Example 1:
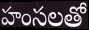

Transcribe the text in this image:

హంసలతో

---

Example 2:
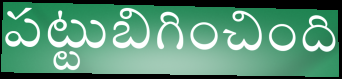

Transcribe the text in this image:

పట్టుబిగించింది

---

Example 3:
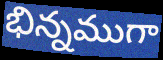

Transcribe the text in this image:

భిన్నముగా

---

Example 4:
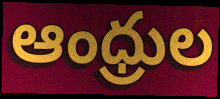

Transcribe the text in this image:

ఆంధ్రుల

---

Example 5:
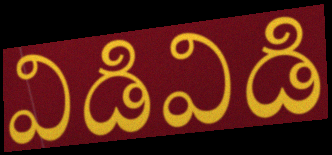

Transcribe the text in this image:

విడివిడి